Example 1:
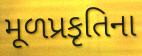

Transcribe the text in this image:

મૂળપ્રકૃતિના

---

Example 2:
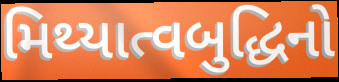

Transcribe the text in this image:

મિથ્યાત્વબુદ્ધિનો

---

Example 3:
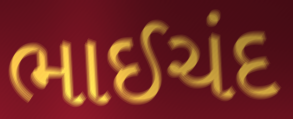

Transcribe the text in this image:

ભાઈચંદ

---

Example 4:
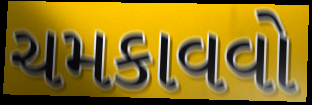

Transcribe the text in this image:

ચમકાવવો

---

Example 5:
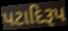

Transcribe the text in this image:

પટાદિરૂપ